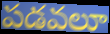
పడవలూ